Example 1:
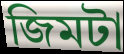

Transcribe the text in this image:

জিমটা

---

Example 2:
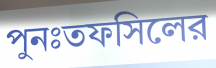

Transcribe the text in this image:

পুনঃতফসিলের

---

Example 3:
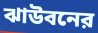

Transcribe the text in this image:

ঝাউবনের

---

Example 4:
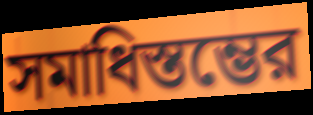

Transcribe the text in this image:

সমাধিস্তম্ভের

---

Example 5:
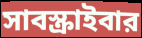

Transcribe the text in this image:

সাবস্ক্রাইবার